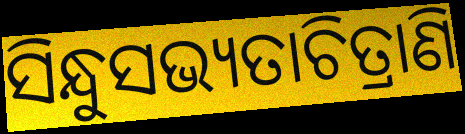
ସିନ୍ଧୁସଭ୍ୟତାଚିତ୍ରାଣି